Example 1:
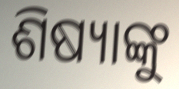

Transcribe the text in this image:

ଶିଷ୍ୟାଙ୍କୁ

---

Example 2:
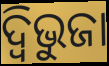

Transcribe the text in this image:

ଦ୍ଵିଭୁଜା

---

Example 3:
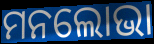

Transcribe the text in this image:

ମନଲୋଭା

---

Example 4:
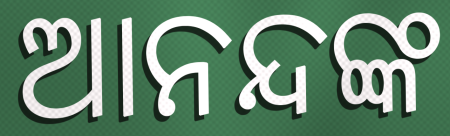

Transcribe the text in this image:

ଆନନ୍ଦଙ୍କ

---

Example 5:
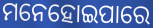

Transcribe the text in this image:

ମନେହୋଇପାରେ